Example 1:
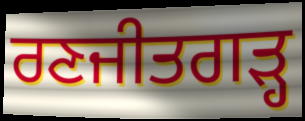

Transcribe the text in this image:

ਰਣਜੀਤਗੜ੍ਹ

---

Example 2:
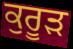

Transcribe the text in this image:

ਕੁਰੂੜ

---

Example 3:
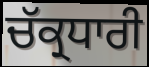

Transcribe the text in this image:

ਚੱਕ੍ਰਧਾਰੀ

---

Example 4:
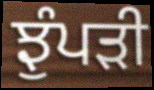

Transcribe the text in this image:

ਝੁੰਪੜੀ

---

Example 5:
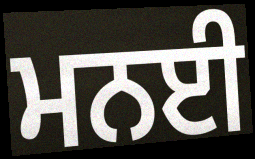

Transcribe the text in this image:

ਮਨਈ